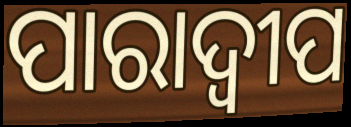
ପାରାଦ୍ୱୀପ